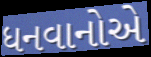
ધનવાનોએ